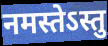
नमस्तेऽस्तु